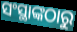
ସଂସ୍ଥାଙ୍କଠାରୁ